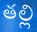
తల్లి